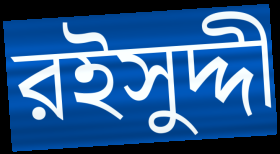
রইসুদ্দী